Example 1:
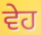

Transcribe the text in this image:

ਵੇਹ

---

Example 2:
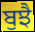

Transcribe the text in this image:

ਬੁਝੈ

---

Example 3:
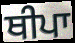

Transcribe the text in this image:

ਥੀਪਾ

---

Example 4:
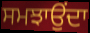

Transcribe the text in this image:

ਸਮਝਾਉਂਦਾ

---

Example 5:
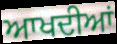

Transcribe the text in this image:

ਆਖਦੀਆਂ